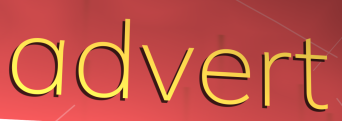
advert